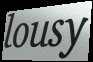
lousy